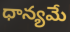
ధాన్యమే